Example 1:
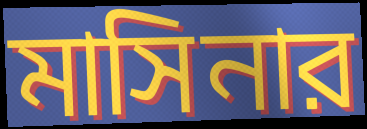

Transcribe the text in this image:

মাসিনার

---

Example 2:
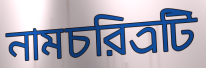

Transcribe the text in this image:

নামচরিত্রটি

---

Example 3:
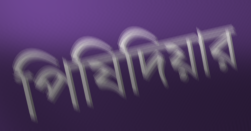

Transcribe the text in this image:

পিষিদিয়ার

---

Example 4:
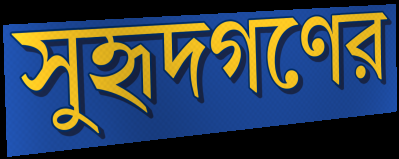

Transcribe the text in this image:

সুহৃদগণের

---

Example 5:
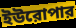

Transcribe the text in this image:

ইউরোপার